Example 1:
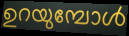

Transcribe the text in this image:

ഉറയുമ്പോൾ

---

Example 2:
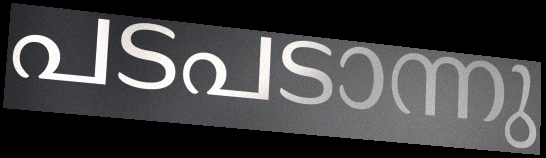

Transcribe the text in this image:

പടപടാന്നു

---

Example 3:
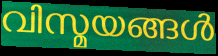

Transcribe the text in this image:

വിസ്മയങ്ങൾ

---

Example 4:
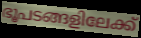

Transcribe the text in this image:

ഭൂപടങ്ങളിലേക്ക്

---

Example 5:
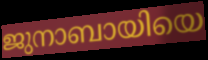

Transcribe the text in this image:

ജുനാബായിയെ